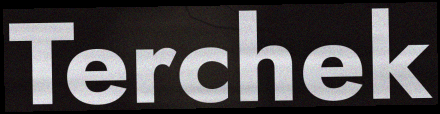
Terchek